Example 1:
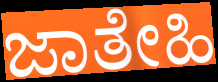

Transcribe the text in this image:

ಜಾತೇಹಿ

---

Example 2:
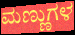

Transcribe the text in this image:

ಮಣ್ಣುಗಳ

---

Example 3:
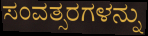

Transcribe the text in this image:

ಸಂವತ್ಸರಗಳನ್ನು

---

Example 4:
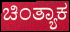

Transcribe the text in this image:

ಚಿಂತ್ಯಾಕ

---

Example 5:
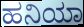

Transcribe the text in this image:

ಹನಿಯಾ